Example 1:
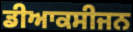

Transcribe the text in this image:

ਡੀਆਕਸੀਜਨ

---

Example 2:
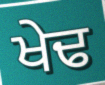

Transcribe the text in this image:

ਖੇਢ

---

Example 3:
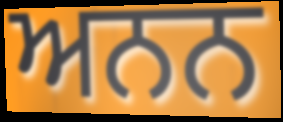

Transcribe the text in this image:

ਅਨਨ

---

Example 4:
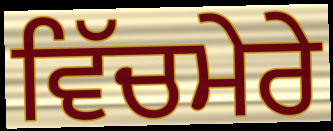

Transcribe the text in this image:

ਵਿੱਚਮੇਰੇ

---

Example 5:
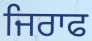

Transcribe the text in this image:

ਜਿਰਾਫ